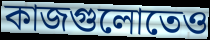
কাজগুলোতেও